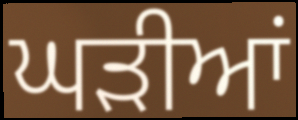
ਘੜੀਆਂ